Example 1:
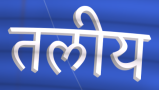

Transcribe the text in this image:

तलीय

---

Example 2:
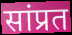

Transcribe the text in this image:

सांप्रत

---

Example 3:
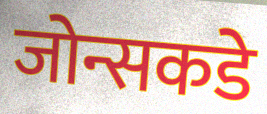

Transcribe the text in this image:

जोन्सकडे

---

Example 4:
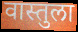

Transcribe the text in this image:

वास्तुला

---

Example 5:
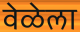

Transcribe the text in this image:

वेळेला